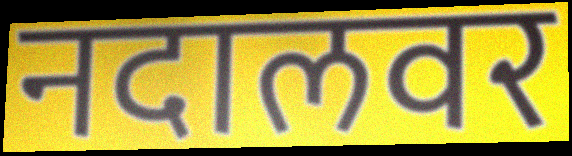
नदालवर